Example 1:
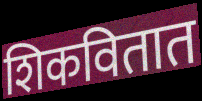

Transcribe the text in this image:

शिकवितात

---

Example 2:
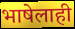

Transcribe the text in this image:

भाषेलाही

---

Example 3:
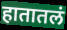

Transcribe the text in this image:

हातातलं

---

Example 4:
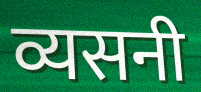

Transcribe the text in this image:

व्यसनी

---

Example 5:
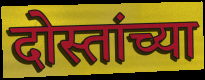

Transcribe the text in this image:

दोस्तांच्या